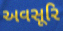
અવસૂરિ